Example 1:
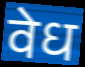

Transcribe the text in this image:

वेध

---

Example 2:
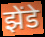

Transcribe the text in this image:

झेंडे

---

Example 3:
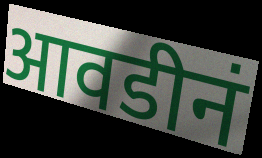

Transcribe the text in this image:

आवडीनं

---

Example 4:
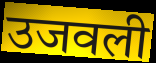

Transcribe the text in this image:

उजवली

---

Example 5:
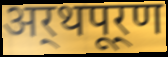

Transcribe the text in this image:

अर्थपूर्ण